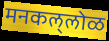
मनकल्लोळ